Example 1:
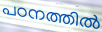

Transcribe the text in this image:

പഠനത്തിൽ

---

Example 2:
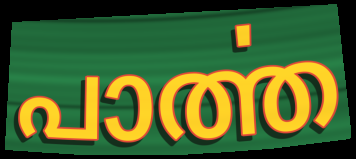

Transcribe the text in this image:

പാൎത്ത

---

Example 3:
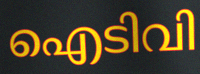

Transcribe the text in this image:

ഐടിവി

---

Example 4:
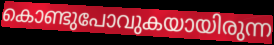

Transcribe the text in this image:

കൊണ്ടുപോവുകയായിരുന്ന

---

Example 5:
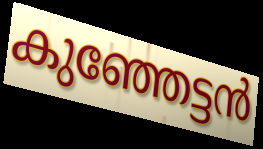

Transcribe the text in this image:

കുഞ്ഞേട്ടൻ